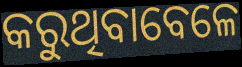
କରୁଥିବାବେଳେ